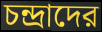
চন্দ্রাদের